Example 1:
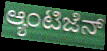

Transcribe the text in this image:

ಆ್ಯಂಟಿಜೆನ್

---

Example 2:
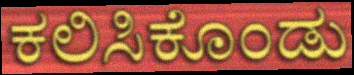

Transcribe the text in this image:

ಕಲಿಸಿಕೊಂಡು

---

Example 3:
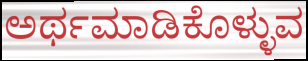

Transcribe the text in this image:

ಅರ್ಥಮಾಡಿಕೊಳ್ಳುವ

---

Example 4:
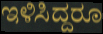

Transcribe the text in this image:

ಇಳಿಸಿದ್ದರೂ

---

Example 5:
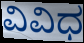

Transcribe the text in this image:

ವಿವಿಧ